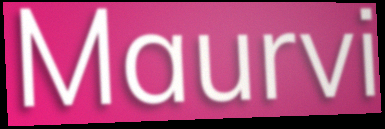
Maurvi